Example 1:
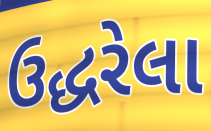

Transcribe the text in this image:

ઉદ્ધરેલા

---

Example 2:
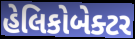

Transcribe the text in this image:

હેલિકોબેક્ટર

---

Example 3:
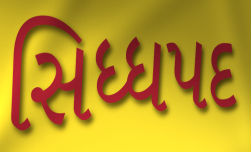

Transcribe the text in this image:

સિધ્ધપદ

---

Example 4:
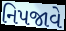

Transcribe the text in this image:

નિપજાવે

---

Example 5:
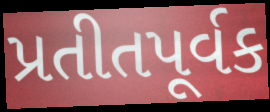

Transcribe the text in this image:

પ્રતીતપૂર્વક